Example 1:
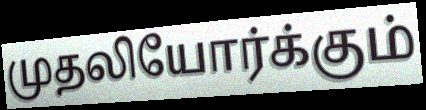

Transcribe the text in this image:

முதலியோர்க்கும்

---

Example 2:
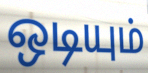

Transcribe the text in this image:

ஒடியும்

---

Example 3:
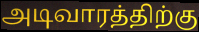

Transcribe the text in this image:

அடிவாரத்திற்கு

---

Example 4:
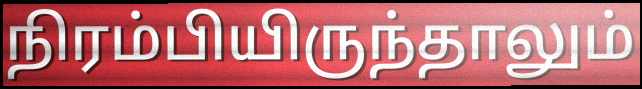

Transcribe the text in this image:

நிரம்பியிருந்தாலும்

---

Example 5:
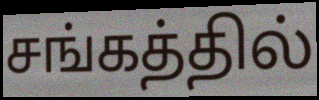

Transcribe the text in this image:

சங்கத்தில்